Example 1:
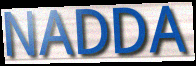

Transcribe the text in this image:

NADDA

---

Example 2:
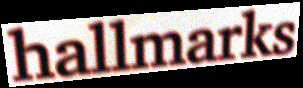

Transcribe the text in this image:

hallmarks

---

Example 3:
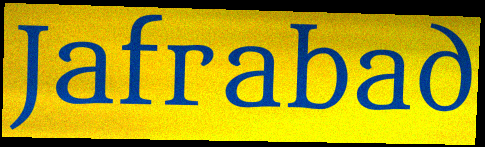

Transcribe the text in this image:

Jafrabad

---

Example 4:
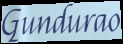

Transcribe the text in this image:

Gundurao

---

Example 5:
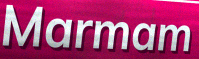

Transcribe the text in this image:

Marmam